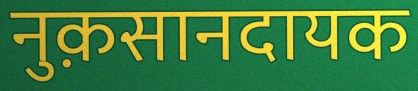
नुक़सानदायक